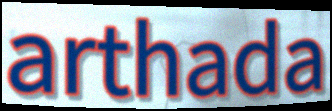
arthada